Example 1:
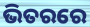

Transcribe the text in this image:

ଭିତରରେ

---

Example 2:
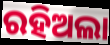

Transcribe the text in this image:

ରହିଅଲା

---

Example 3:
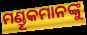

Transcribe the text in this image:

ମଣ୍ଡୂକମାନଙ୍କୁ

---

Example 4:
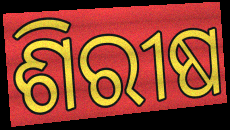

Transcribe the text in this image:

ଶିରୀଷ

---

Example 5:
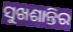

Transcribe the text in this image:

ସୁଖଶାନ୍ତିର